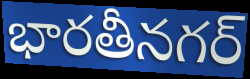
భారతీనగర్